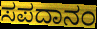
ಸಪದಾನಂ